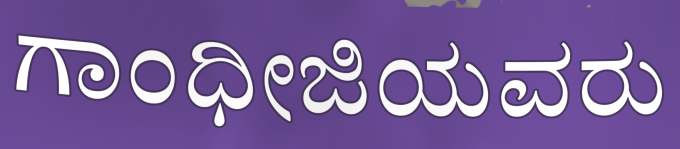
ಗಾಂಧೀಜಿಯವರು